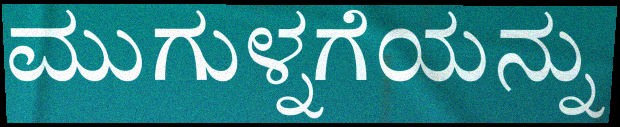
ಮುಗುಳ್ನಗೆಯನ್ನು